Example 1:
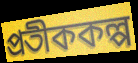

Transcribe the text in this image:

প্রতীককল্প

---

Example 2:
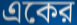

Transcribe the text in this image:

একের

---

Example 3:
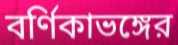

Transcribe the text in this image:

বর্ণিকাভঙ্গের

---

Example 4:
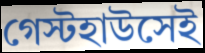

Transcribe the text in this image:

গেস্টহাউসেই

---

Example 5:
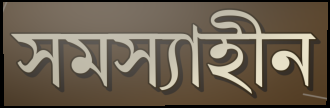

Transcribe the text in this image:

সমস্যাহীন